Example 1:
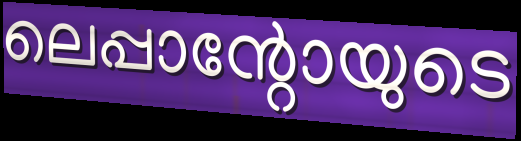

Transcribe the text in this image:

ലെപ്പാന്റോയുടെ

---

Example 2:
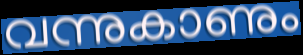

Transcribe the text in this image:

വന്നുകാണും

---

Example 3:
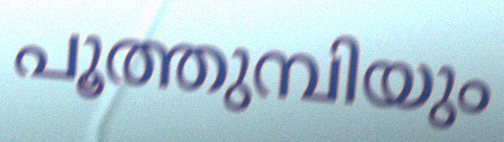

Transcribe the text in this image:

പൂത്തുമ്പിയും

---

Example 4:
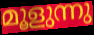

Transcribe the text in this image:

മൂളുന്നു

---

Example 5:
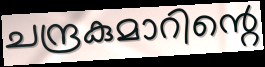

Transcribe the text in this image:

ചന്ദ്രകുമാറിന്റെ